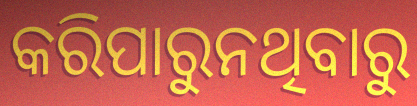
କରିପାରୁନଥିବାରୁ